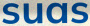
suas